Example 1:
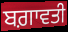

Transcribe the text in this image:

ਬਗ਼ਾਵਤੀ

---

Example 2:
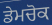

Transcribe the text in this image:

ਡੇਮਚੋਕ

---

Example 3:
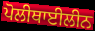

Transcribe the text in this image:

ਪੋਲੀਥਾਈਲੀਨ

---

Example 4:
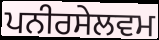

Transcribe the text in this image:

ਪਨੀਰਸੇਲਵਮ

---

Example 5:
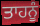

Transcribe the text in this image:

ਤਾਹਨੂੰ